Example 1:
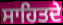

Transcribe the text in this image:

ਸਾਹਿਤਦੇ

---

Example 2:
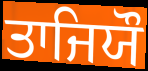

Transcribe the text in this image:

ਤਾਜਿਯੌ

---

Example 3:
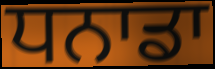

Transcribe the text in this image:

ਧਨਾਡਾ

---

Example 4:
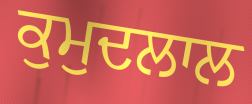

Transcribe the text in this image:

ਕੁਮੁਦਲਾਲ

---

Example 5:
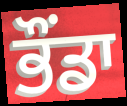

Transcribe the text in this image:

ਭੌਂਡਾ